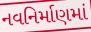
નવનિર્માણમાં